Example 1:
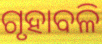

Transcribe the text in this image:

ଗୃହାବଳି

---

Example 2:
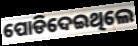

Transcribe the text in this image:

ପୋଡିଦେଇଥିଲେ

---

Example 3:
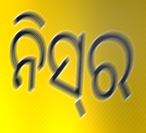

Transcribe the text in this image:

ନିସ୍‌ର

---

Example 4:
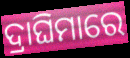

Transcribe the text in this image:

ଦ୍ରାଘିମାରେ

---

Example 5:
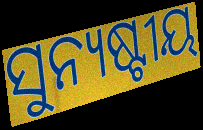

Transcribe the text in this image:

ସୁନ୍ୟଷ୍ଟୀୟ